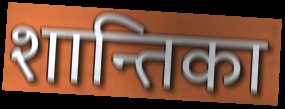
शान्तिका